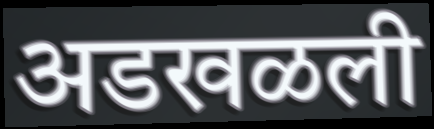
अडखळली